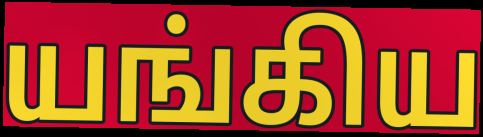
யங்கிய